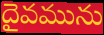
దైవమును